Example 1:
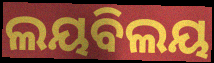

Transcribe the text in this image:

ଲୟବିଲୟ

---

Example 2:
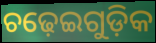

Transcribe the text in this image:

ଚଢ଼େଇଗୁଡ଼ିକ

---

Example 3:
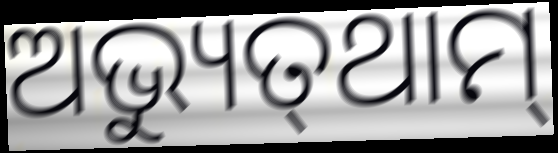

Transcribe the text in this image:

ଅଭ୍ୟୁତ୍‌ଥାମ୍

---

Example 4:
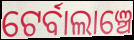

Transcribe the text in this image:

ଟେର୍ବାଲାଞ୍ଚେ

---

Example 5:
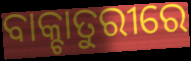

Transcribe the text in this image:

ବାକ୍ଚାତୁରୀରେ